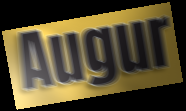
Augur